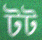
টট